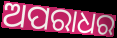
ଅପରାଧର